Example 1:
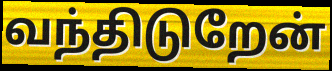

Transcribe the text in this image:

வந்திடுறேன்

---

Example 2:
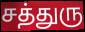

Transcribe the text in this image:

சத்துரு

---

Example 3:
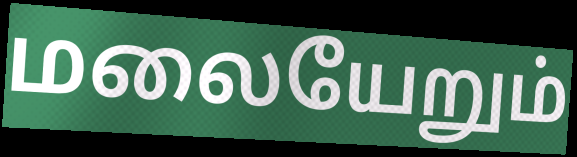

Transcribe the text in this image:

மலையேறும்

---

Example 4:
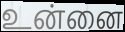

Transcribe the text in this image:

உன்னை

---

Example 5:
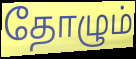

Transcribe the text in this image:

தோழும்